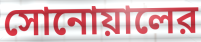
সোনোয়ালের